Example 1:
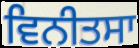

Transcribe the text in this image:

ਵਿਨੀਤਸਾ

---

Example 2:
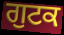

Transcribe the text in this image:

ਗੁਟਕ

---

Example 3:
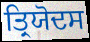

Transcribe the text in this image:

ਤ੍ਰਿਯੋਦਸ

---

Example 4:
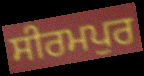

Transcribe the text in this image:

ਸੀਰਮਪੁਰ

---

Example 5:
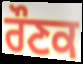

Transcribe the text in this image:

ਰੌਣਕ